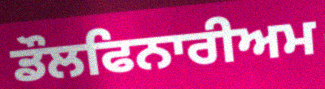
ਡੌਲਫਿਨਾਰੀਅਮ